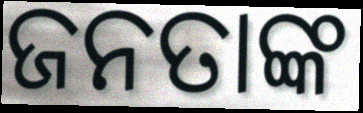
ଜନତାଙ୍କ